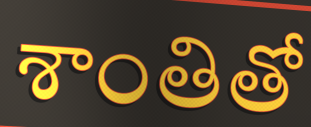
శాంతితో